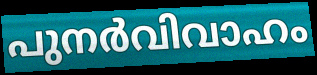
പുനർവിവാഹം